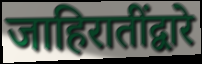
जाहिरातींद्वारे